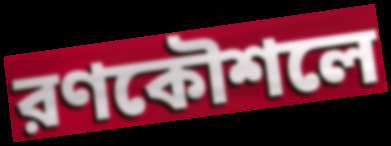
রণকৌশলে